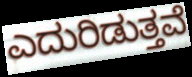
ಎದುರಿಡುತ್ತವೆ